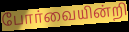
போர்வையின்றி